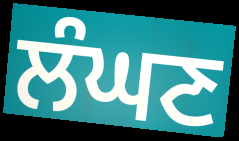
ਲੰਘਣ